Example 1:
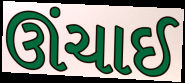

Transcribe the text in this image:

ઊંચાઈ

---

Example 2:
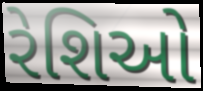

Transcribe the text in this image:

રેશિઓ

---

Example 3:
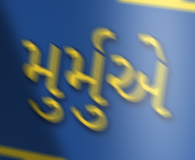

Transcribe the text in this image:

મુર્મુએ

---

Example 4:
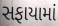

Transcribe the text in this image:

સફાયામાં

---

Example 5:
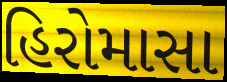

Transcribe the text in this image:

હિરોમાસા